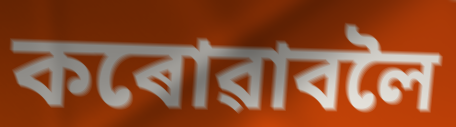
কৰোৱাবলৈ